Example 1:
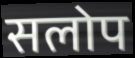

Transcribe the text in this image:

सलोप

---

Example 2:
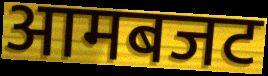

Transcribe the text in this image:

आमबजट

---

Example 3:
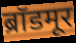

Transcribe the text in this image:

ब्रॉडमूर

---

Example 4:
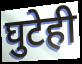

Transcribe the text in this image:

घुटेही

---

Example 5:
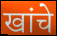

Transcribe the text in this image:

खांचे